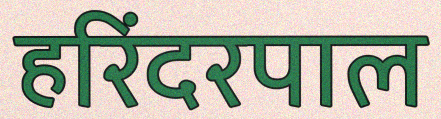
हरिंदरपाल